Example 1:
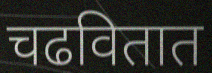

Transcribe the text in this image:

चढवितात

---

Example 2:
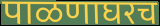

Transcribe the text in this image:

पाळणाघरच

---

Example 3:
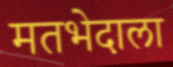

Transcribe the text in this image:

मतभेदाला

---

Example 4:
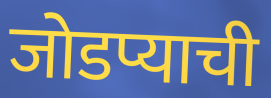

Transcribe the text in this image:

जोडप्याची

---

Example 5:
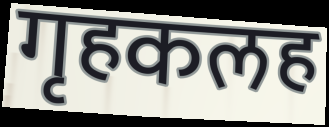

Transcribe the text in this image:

गृहकलह